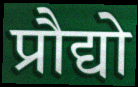
प्रौद्यो